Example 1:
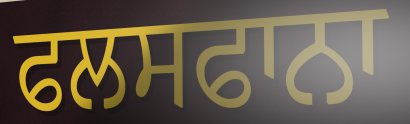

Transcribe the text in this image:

ਫਲਸਫਾਨਾ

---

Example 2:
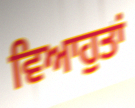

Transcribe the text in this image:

ਵਿਆਹੁਤਾਂ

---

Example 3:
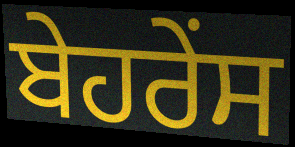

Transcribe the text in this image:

ਬੇਹਰੇਂਸ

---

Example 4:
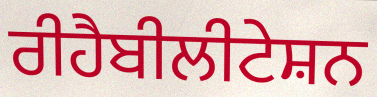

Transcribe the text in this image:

ਰੀਹੈਬੀਲੀਟੇਸ਼ਨ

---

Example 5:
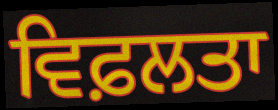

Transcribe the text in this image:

ਵਿਫ਼ਲਤਾ